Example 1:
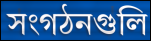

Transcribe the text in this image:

সংগঠনগুলি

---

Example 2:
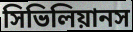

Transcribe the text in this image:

সিভিলিয়ানস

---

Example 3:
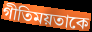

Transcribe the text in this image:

গীতিময়তাকে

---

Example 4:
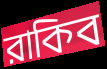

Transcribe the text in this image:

রাকিব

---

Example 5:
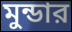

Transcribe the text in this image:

মুন্ডার